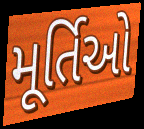
મૂર્તિઓ